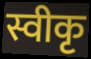
स्वीकृ